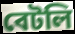
বেটলি